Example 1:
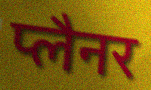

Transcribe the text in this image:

प्लैनर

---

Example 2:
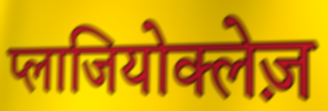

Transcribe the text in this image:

प्लाजियोक्लेज़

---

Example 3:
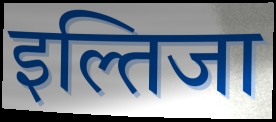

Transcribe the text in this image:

इल्तिजा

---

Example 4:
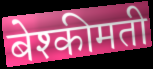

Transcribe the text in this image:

बेश्कीमती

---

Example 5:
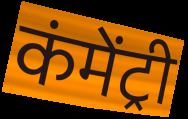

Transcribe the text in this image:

कंमेंट्री